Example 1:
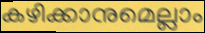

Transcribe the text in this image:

കഴിക്കാനുമെല്ലാം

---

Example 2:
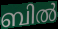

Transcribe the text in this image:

ബിൽ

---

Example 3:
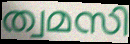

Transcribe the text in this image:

ത്വമസി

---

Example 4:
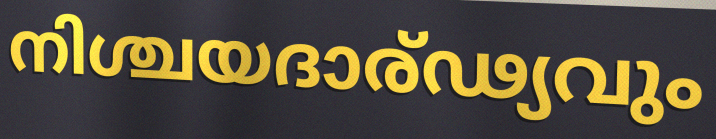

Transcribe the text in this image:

നിശ്ചയദാര്ഢ്യവും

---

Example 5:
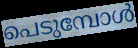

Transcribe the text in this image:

പെടുമ്പോൾ